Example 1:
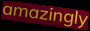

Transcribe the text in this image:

amazingly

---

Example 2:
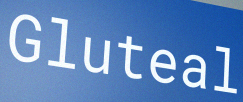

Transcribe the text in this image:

Gluteal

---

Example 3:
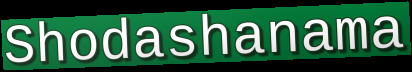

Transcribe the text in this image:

Shodashanama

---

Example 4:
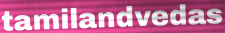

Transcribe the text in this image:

tamilandvedas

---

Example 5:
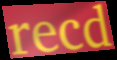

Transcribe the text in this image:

recd